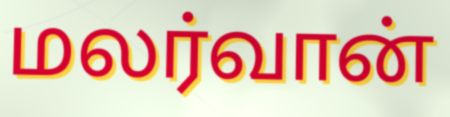
மலர்வான்